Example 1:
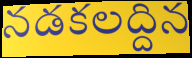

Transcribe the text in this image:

నడకలద్దిన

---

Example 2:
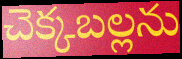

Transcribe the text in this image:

చెక్కబల్లను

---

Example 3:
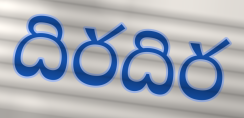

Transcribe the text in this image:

దిరదిర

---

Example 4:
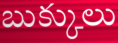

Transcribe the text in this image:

బుక్కులు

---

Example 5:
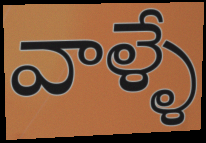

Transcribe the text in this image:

వాళ్ళే